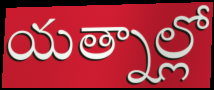
యత్నాల్లో